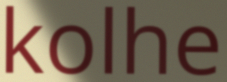
kolhe